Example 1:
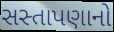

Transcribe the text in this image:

સસ્તાપણાનો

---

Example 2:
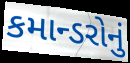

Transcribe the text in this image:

કમાન્ડરોનું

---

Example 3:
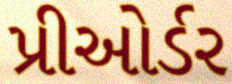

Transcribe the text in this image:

પ્રીઓર્ડર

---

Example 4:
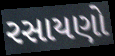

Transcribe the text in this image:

રસાયણો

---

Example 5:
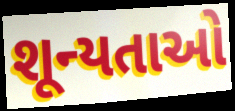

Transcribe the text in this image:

શૂન્યતાઓ